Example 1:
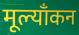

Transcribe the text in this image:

मूल्याँकन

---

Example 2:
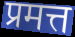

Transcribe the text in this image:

प्रमत्त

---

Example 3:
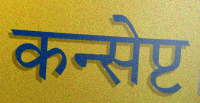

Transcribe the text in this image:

कन्सेप्ट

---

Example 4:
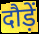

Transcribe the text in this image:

दौड़ें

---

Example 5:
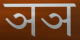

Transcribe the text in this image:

ञञ